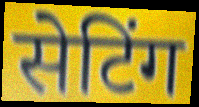
सेटिंग